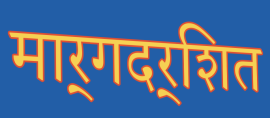
मार्गदर्शित